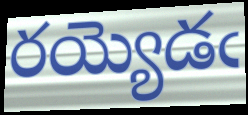
రయ్యెడఁ